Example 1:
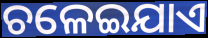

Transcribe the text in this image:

ଚଳେଇଯାଏ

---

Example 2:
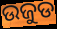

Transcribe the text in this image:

ଉଜୁଡ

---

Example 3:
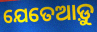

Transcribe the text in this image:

ଯେତେଆଡ଼ୁ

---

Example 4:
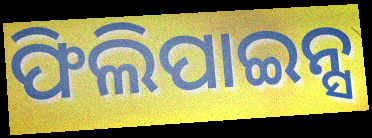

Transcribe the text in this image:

ଫିଲିପାଇନ୍ସ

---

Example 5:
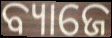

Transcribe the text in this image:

ବ୍ୟାଜେ